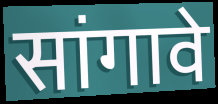
सांगावे